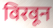
विरवून